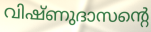
വിഷ്ണുദാസന്റെ